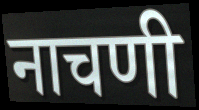
नाचणी